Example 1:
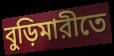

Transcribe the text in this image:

বুড়িমারীতে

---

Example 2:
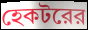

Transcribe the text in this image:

হেকটরের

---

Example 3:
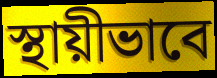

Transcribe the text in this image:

স্থায়ীভাবে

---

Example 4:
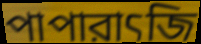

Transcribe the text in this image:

পাপারাৎজি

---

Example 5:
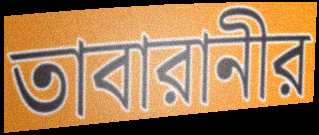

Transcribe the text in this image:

তাবারানীর